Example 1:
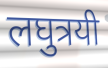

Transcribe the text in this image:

लघुत्रयी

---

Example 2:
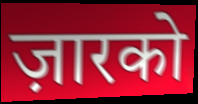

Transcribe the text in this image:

ज़ारको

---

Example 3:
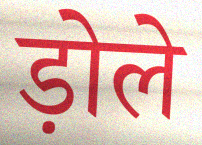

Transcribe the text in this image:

ड़ोले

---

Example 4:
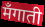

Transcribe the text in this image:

मँगाती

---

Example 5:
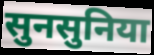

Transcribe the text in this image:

सुनसुनिया